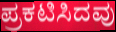
ಪ್ರಕಟಿಸಿದವು